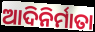
ଆଦିନିର୍ମାତା